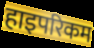
हाइपरिकम